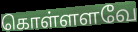
கொள்ளளவே